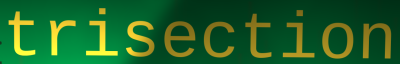
trisection